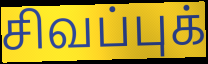
சிவப்புக்